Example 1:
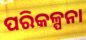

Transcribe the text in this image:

ପରିକଳ୍ପନା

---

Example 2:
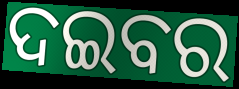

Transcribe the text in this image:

ଦଇବର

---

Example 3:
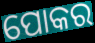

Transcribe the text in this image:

ପୋକର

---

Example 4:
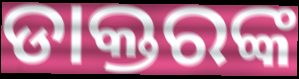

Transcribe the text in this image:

ଡାକ୍ତରଙ୍କ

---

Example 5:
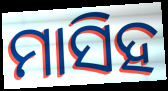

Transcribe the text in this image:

ମାସିହ